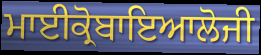
ਮਾਈਕ੍ਰੋਬਾਇਆਲੋਜੀ